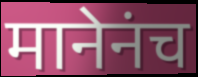
मानेनंच